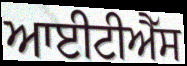
ਆਈਟੀਐੱਸ